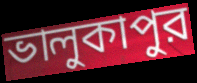
ভালুকাপুর